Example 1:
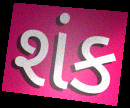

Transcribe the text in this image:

શંક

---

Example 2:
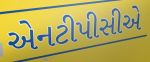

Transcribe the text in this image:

એનટીપીસીએ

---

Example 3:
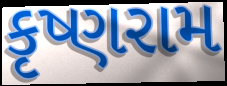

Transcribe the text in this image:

કૃષ્ણરામ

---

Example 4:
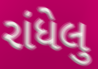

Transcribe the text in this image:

રાંધેલુ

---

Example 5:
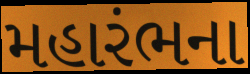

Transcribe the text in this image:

મહારંભના